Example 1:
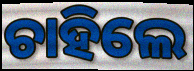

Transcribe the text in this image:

ଚାହିଲେ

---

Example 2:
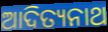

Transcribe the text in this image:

ଆଦିତ୍ୟନାଥ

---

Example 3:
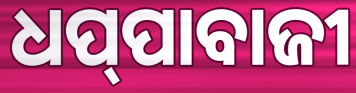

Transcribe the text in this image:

ଧପ୍‌ପାବାଜୀ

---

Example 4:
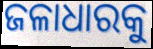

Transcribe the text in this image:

ଜଳାଧାରକୁ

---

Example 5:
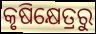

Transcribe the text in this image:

କୃଷିକ୍ଷେତ୍ରରୁ